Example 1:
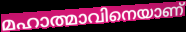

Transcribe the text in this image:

മഹാത്മാവിനെയാണ്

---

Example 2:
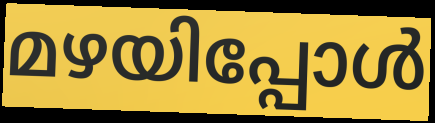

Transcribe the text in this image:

മഴയിപ്പോൾ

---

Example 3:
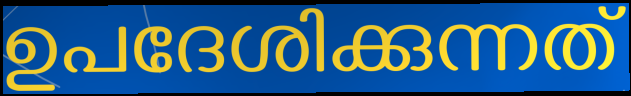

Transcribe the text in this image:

ഉപദേശിക്കുന്നത്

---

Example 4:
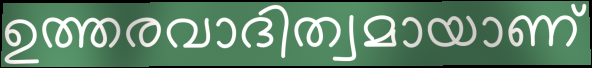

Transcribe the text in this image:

ഉത്തരവാദിത്വമായാണ്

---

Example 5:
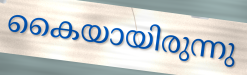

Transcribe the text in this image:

കൈയായിരുന്നു